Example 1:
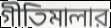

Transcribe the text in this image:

গীতিমালার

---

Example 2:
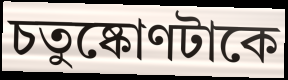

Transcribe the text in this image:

চতুষ্কোণটাকে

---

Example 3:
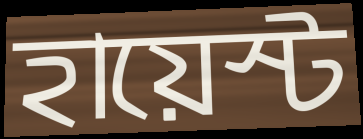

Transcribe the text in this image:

হায়েস্ট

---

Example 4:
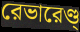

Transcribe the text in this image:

রেভারেণ্ড্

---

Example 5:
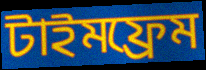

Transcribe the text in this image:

টাইমফ্রেম